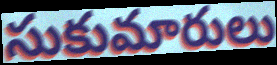
సుకుమారులు